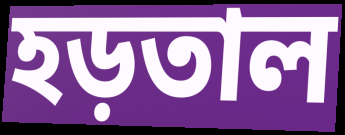
হড়তাল